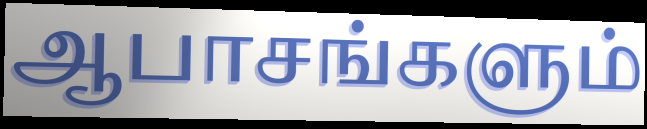
ஆபாசங்களும்